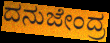
ದನುಜೇಂದ್ರ